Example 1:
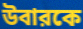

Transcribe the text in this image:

উবারকে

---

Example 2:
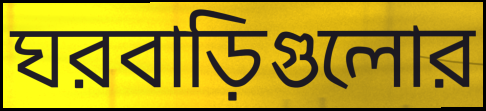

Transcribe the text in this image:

ঘরবাড়িগুলোর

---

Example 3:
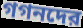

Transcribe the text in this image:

গগনদের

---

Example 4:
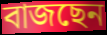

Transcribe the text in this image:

বাজছেন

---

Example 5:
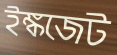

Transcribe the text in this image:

ইঙ্কজেট